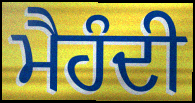
ਮੈਹੰਦੀ